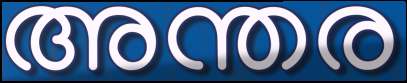
അന്തര